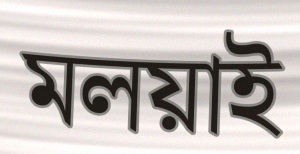
মলয়াই